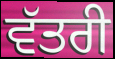
ਵੱਤਰੀ